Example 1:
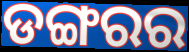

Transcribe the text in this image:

ଡଙ୍ଗରର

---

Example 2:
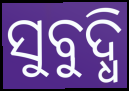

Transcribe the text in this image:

ସୁବୁଦ୍ଧି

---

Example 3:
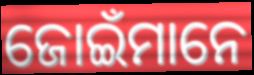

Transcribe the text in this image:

ଜୋଇଁମାନେ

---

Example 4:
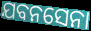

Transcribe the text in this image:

ଯବନସେନା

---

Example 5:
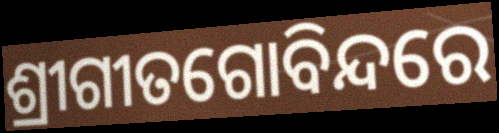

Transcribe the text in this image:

ଶ୍ରୀଗୀତଗୋବିନ୍ଦରେ